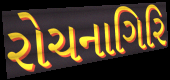
રોચનાગિરિ